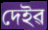
দেইৱ